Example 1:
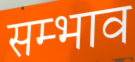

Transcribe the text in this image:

सम्भाव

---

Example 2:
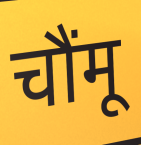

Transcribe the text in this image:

चौंमू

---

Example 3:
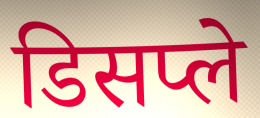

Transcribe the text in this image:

डिसप्ले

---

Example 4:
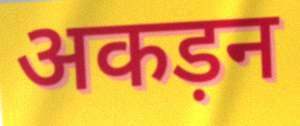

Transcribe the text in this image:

अकड़न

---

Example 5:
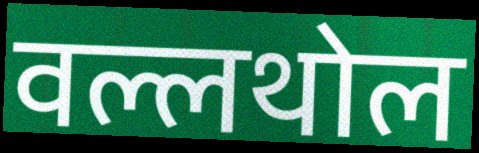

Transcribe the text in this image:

वल्लथोल